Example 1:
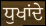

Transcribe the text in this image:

ਧੁਖਾਂਦੇ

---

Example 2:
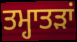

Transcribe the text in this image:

ਤਮ੍ਹਾਤੜਾਂ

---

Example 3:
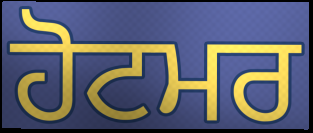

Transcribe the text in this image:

ਹੋਟਮਰ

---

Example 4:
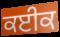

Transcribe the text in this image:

ਕਈਕ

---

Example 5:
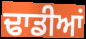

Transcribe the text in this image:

ਢਾਡੀਆਂ